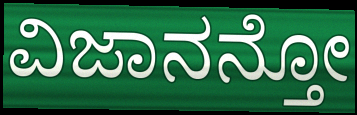
ವಿಜಾನನ್ತೋ